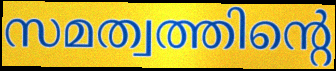
സമത്വത്തിന്റെ